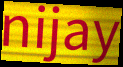
nijay